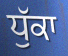
ਧੁੱਕਾ